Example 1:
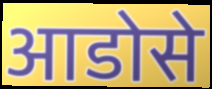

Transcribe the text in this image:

आडोसे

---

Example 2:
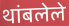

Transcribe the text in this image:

थांबलेले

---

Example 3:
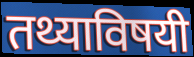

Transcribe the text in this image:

तथ्याविषयी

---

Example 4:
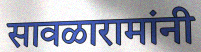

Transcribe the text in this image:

सावळारामांनी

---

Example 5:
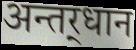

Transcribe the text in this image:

अन्तर्धान